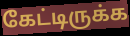
கேட்டிருக்க